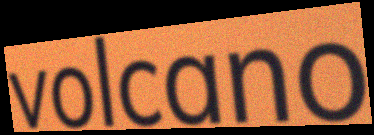
volcano